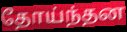
தோய்ந்தன